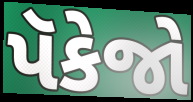
પૅકેજો